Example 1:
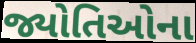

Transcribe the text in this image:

જ્યોતિઓના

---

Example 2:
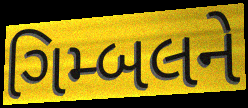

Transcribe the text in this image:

ગિમ્બલને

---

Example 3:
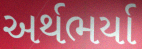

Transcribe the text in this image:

અર્થભર્યા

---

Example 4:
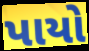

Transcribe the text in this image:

પાયો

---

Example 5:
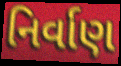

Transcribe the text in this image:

નિર્વાણ